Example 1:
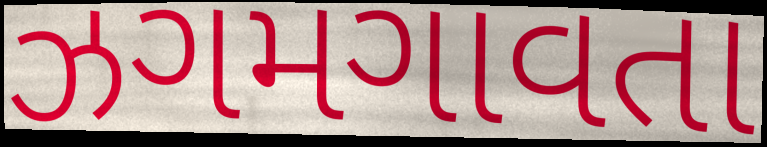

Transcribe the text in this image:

ઝગમગાવતા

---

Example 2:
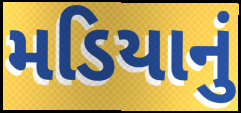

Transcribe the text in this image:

મડિયાનું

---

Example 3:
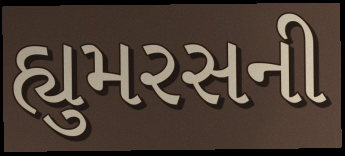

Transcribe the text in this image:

હ્યુમરસની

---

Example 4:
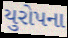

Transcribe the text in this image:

યુરોપના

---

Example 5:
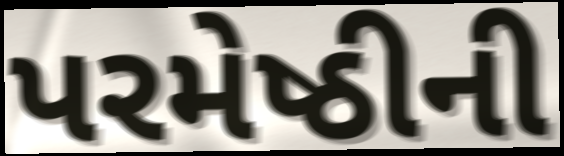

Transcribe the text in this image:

પરમેષ્ઠીની